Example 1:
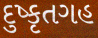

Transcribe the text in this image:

દુષ્કૃતગહ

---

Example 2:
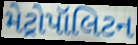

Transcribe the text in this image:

મેટ્રોપૉલિટન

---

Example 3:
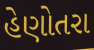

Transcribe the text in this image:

હેણોતરા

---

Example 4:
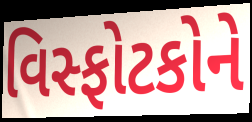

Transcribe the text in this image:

વિસ્ફોટકોને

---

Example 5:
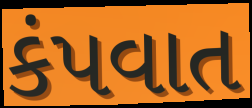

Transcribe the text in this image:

કંપવાત